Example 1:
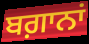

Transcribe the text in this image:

ਬਗ਼ਾਨਾਂ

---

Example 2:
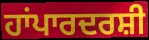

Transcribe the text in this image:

ਹਾਂਪਾਰਦਰਸ਼ੀ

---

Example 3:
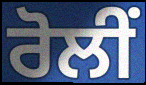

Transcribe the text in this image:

ਰੋਲੀਂ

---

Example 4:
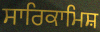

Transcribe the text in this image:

ਸਾਰਿਕਾਮਿਸ਼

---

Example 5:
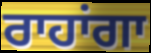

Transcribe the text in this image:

ਰਾਹਾਂਗਾ